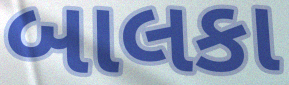
બાલકા